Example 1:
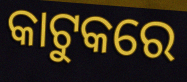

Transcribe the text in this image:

କାଟୁକରେ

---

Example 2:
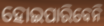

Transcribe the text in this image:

ହୋଇପାରିବେନି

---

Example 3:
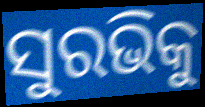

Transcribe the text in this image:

ସୁରଭିକୁ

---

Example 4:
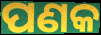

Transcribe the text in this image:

ପଣକ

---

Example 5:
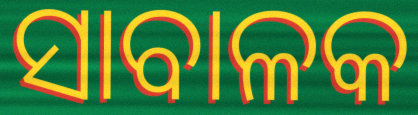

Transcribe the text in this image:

ସାବାଳକ